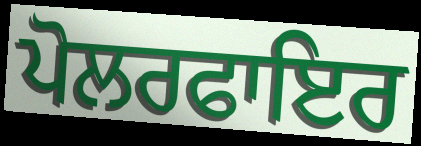
ਪੋਲਰਫਾਇਰ